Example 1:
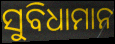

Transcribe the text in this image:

ସୁବିଧାମାନ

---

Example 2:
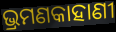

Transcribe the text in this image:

ଭ୍ରମଣକାହାଣୀ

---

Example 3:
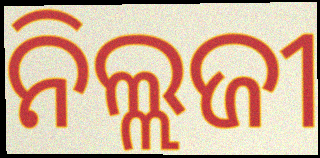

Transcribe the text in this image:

ନିଲ୍ଲଜୀ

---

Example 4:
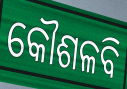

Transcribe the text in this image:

କୌଶଳବି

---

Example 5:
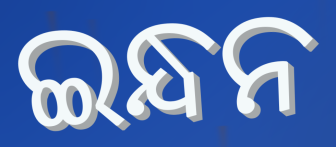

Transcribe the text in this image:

ଇନ୍ଧନ